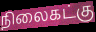
நிலைகட்கு